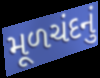
મૂળચંદનું